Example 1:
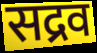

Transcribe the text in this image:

सद्रव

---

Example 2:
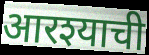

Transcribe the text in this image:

आरश्याची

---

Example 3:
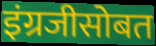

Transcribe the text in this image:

इंग्रजीसोबत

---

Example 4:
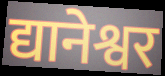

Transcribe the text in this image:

द्यानेश्वर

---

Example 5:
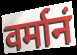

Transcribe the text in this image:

वर्मानं